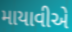
માયાવીએ